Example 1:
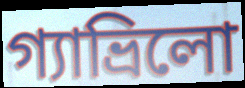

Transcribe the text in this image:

গ্যাভ্রিলো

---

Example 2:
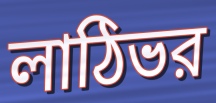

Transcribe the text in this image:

লাঠিভর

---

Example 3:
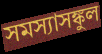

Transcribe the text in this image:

সমস্যাসঙ্কুল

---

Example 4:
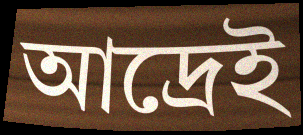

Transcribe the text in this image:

আদ্রেই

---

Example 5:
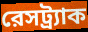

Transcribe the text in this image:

রেসট্র্যাক